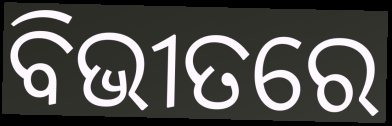
ବିଭୀତରେ